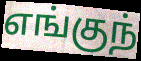
எங்குந்